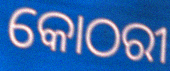
କୋଠରୀ